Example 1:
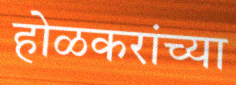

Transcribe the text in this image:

होळकरांच्या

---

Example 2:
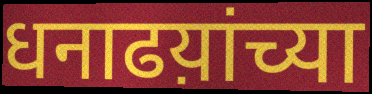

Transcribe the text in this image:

धनाढय़ांच्या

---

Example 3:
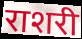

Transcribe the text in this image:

राशरी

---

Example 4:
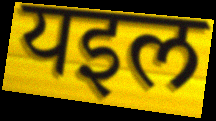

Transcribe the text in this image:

यइल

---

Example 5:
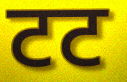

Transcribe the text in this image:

टट